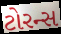
ટોરન્સ